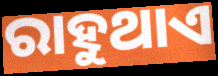
ରାହୁଥାଏ